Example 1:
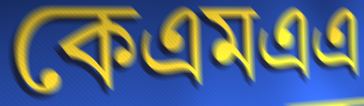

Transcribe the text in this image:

কেএমএএ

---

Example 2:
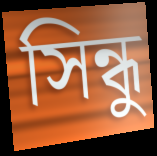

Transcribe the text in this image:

সিন্ধু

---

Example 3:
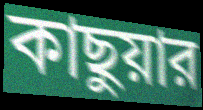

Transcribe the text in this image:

কাছুয়ার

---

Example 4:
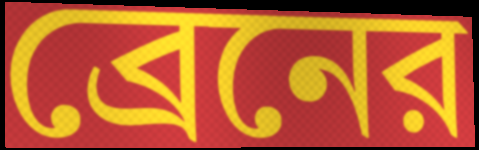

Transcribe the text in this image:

ব্রেনের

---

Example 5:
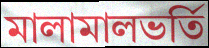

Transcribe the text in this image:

মালামালভর্তি